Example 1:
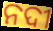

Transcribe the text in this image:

ନଦୀ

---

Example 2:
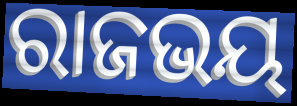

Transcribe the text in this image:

ରାଜଭୟ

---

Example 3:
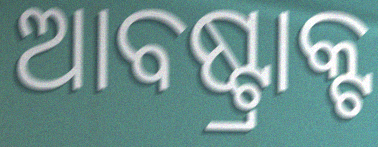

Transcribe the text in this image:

ଆବଷ୍ଟ୍ରାକ୍ଟ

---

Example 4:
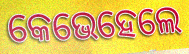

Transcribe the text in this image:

କେଭେହେଲେ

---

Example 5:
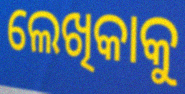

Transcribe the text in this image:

ଲେଖିକାକୁ